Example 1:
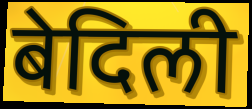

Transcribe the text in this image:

बेदिली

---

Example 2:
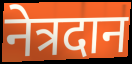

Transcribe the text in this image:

नेत्रदान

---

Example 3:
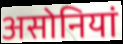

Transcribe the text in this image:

असोनियां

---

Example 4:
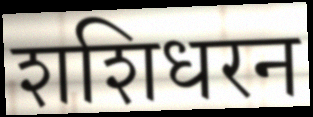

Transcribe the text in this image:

शशिधरन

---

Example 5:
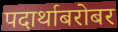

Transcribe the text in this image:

पदार्थाबरोबर